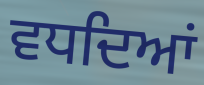
ਵਧਦਿਆਂ